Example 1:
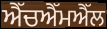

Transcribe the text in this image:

ਐੱਚਐੱਮਐੱਲ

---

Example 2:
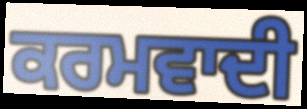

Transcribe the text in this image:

ਕਰਮਵਾਦੀ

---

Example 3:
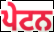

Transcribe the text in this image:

ਪੇਟਨ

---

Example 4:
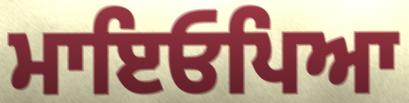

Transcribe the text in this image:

ਮਾਇਓਪਿਆ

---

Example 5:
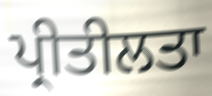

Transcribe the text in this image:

ਪ੍ਰੀਤੀਲਤਾ